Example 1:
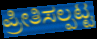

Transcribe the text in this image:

ಪ್ರೀತಿಸಲ್ಪಟ್ಟ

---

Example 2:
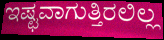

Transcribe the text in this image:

ಇಷ್ಟವಾಗುತ್ತಿರಲಿಲ್ಲ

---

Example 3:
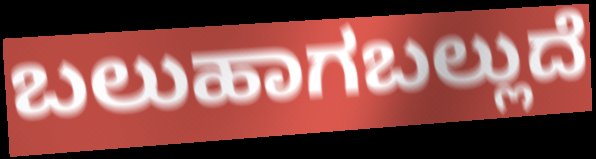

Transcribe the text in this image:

ಬಲುಹಾಗಬಲ್ಲುದೆ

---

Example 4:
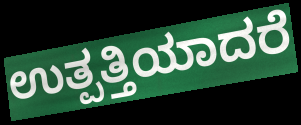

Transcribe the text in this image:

ಉತ್ಪತ್ತಿಯಾದರೆ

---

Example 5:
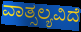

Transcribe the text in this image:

ವಾತ್ಸಲ್ಯವಿದೆ